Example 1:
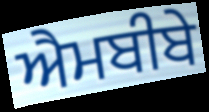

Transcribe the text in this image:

ਐਮਬੀਬੇ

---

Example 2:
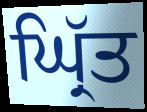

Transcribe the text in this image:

ਘ੍ਰਿੱਤ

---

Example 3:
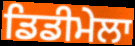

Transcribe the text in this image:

ਡਿਡੀਮੇਲਾ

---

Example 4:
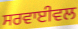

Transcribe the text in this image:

ਸਰਵਾਈਵਲ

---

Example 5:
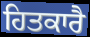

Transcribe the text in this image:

ਹਿਤਕਾਰੈ